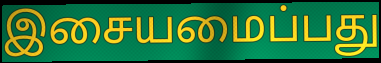
இசையமைப்பது